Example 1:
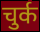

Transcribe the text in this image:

चुर्क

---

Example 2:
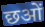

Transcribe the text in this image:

छओं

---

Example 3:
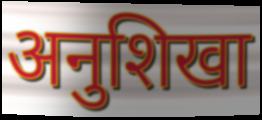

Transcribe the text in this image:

अनुशिखा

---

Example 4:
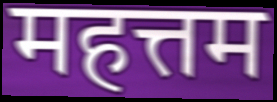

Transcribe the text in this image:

महत्तम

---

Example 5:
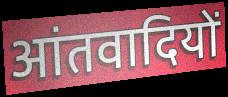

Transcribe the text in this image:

आंतवादियों